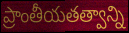
ప్రాంతీయతత్వాన్ని